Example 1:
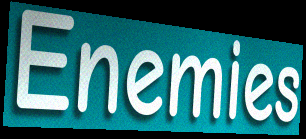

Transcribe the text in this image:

Enemies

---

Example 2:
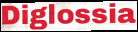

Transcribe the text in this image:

Diglossia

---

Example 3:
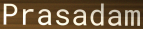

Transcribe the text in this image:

Prasadam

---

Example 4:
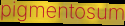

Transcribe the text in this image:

pigmentosum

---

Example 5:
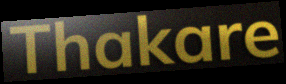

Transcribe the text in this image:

Thakare